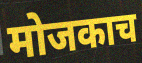
मोजकाच